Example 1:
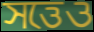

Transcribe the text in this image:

সত্তেও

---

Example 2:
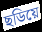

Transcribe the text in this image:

ছডিয়ে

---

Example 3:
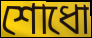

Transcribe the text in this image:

শোধো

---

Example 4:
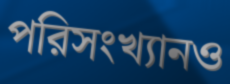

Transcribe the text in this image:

পরিসংখ্যানও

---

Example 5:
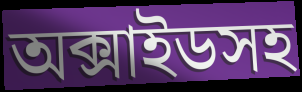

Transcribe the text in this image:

অক্সাইডসহ